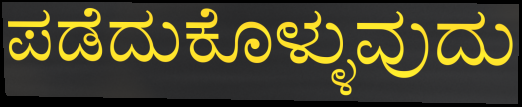
ಪಡೆದುಕೊಳ್ಳುವುದು